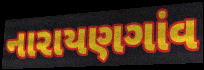
નારાયણગાંવ